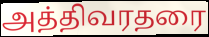
அத்திவரதரை